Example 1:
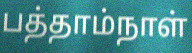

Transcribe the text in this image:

பத்தாம்நாள்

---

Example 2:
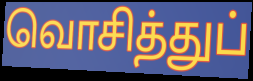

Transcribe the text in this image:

வொசித்துப்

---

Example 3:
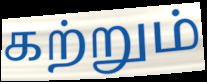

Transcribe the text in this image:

கற்றும்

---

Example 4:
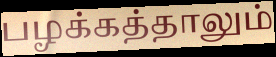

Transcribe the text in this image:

பழக்கத்தாலும்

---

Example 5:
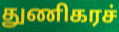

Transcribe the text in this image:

துணிகரச்